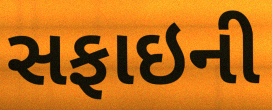
સફાઇની